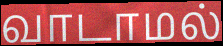
வாடாமல்